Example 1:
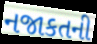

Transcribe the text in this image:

નજાકતની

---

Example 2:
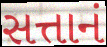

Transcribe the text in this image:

સત્તાનં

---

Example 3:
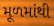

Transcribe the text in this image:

મૂળમાંથી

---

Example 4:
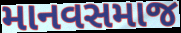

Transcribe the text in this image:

માનવસમાજ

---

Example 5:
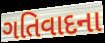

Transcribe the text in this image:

ગતિવાદના